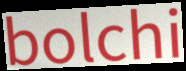
bolchi